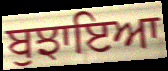
ਬੁਝਾਇਆ